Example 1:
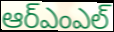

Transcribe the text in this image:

ఆర్ఎంఎల్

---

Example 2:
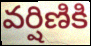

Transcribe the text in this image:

వర్షిణికి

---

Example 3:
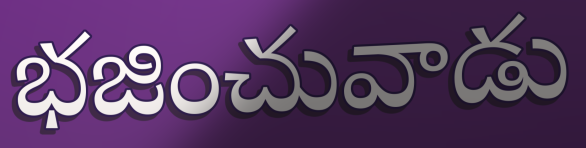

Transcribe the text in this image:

భజించువాడు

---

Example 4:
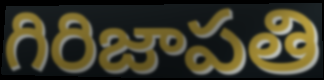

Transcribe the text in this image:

గిరిజాపతి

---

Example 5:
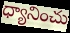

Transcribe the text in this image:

ధ్యానించు